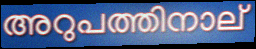
അറുപത്തിനാല്